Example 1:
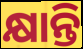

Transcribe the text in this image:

କ୍ଷାନ୍ତି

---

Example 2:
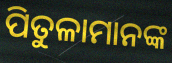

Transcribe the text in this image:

ପିତୁଳାମାନଙ୍କ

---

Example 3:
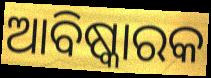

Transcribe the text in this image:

ଆବିଷ୍କାରକ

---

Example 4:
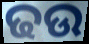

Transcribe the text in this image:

ଢଉ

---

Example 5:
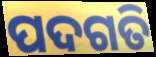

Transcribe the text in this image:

ପଦଗତି